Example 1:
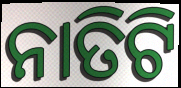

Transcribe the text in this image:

ନାତିଟି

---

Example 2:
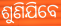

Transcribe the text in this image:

ଶୁଣିଯିବେ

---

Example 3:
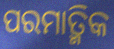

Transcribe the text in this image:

ପରମାତ୍ମିକ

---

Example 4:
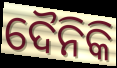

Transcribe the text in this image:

ଦୈନିକି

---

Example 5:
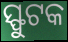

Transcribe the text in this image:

ସ୍ଫୁଟକ